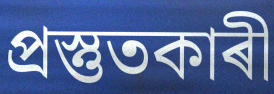
প্ৰস্তুতকাৰী